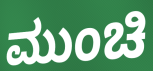
ಮುಂಚಿ